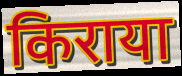
किराया